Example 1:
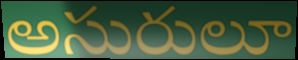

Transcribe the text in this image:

అసురులూ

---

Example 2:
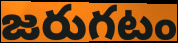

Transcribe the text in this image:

జరుగటం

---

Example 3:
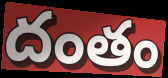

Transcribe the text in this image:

దంతం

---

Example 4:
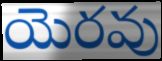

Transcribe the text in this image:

యెరవు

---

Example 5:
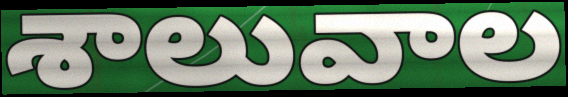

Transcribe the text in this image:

శాలువాల